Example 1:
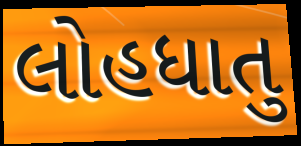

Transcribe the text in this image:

લોહધાતુ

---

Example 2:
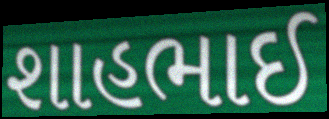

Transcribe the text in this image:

શાહભાઈ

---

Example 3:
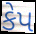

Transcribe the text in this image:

કેપ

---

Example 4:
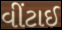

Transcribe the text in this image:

વીંટાઈ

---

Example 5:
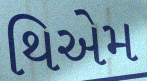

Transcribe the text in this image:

થિએમ